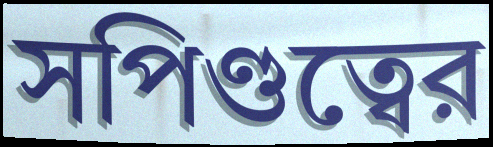
সপিণ্ডত্বের